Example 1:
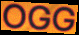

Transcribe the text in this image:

OGG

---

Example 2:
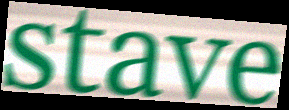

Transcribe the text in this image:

stave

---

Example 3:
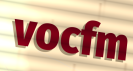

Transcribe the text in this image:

vocfm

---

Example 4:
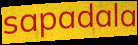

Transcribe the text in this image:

sapadala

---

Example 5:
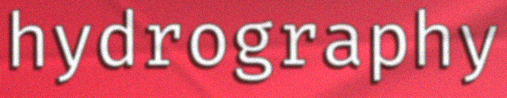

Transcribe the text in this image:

hydrography